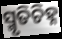
ସ୍ମୃତିଚିହ୍ନ